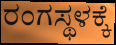
ರಂಗಸ್ಥಳಕ್ಕೆ